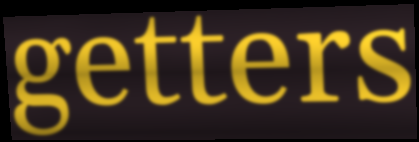
getters